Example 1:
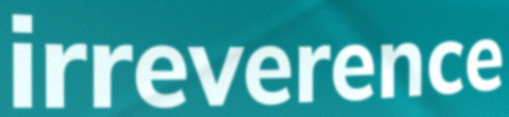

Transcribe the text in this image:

irreverence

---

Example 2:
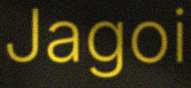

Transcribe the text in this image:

Jagoi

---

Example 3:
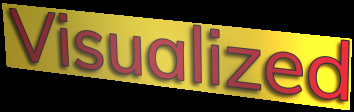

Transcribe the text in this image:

Visualized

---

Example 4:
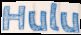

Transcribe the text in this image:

Hulu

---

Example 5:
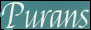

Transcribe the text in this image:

Purans